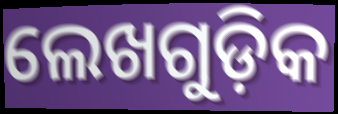
ଲେଖଗୁଡ଼ିକ